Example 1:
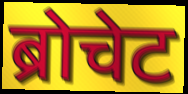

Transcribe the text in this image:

ब्रोचेट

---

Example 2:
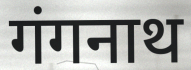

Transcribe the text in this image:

गंगनाथ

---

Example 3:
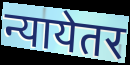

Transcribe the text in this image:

न्यायेतर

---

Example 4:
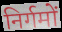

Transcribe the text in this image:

निर्गमों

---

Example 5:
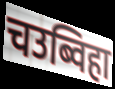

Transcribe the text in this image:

चउब्विहा